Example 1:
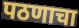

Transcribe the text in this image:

पठणाचा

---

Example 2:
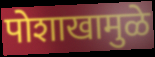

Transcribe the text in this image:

पोशाखामुळे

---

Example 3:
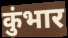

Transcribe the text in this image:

कुंभार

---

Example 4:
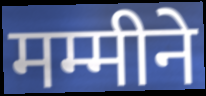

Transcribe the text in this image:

मम्मीने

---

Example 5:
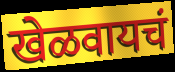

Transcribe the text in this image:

खेळवायचं